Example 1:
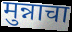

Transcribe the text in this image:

मुन्नाचा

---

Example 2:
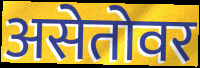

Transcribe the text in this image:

असेतोवर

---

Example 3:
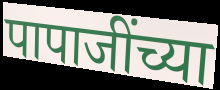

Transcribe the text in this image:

पापाजींच्या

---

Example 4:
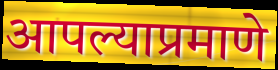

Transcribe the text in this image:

आपल्याप्रमाणे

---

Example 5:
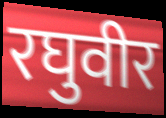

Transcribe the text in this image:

रघुवीर